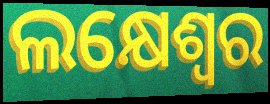
ଲକ୍ଷେଶ୍ୱର